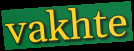
vakhte